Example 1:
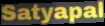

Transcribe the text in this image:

Satyapal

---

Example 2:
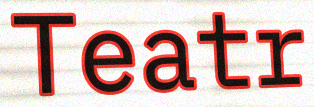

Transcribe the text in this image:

Teatr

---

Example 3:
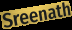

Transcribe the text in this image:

Sreenath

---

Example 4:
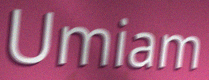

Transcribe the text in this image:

Umiam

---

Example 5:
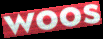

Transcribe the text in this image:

woos